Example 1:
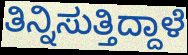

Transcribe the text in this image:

ತಿನ್ನಿಸುತ್ತಿದ್ದಾಳೆ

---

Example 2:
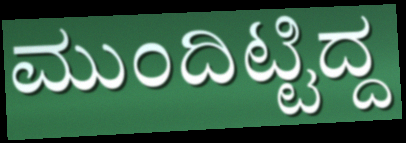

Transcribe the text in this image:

ಮುಂದಿಟ್ಟಿದ್ದ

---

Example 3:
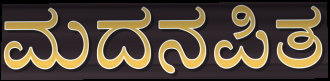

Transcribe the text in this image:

ಮದನಪಿತ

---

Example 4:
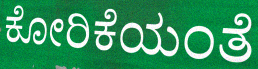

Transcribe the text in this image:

ಕೋರಿಕೆಯಂತೆ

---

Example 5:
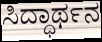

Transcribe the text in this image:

ಸಿದ್ಧಾರ್ಥನ